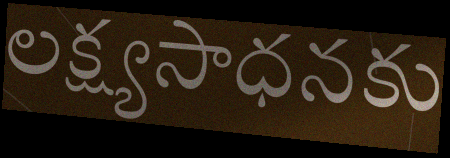
లక్ష్యసాధనకు